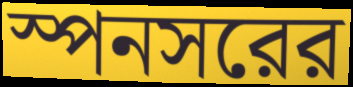
স্পনসরের